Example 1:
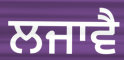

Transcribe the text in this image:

ਲਜਾਵੈ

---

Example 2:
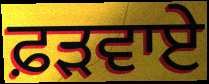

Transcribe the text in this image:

ਫ਼ੜਵਾਏ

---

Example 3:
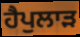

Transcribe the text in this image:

ਹੈਪੁਲਾੜ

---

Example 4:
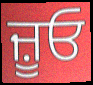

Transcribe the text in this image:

ਜ਼ੂਓ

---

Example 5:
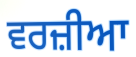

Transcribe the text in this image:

ਵਰਜ਼ੀਆ